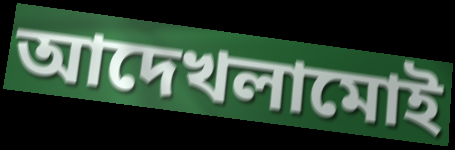
আদেখলামোই